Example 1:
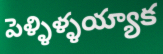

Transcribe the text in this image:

పెళ్ళిళ్ళయ్యాక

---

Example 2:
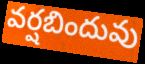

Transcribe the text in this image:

వర్షబిందువు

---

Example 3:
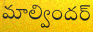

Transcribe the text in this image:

మాల్విందర్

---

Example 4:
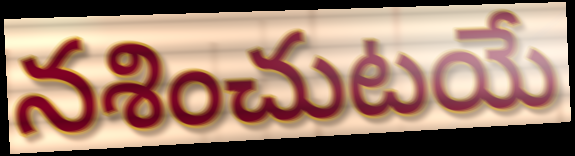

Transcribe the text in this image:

నశించుటయే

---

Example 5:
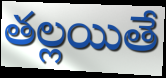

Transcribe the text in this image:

తల్లయితే